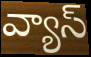
వ్యాస్